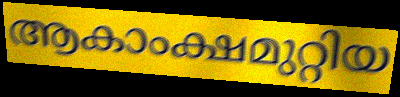
ആകാംക്ഷമുറ്റിയ